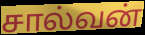
சால்வன்